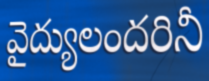
వైద్యులందరినీ